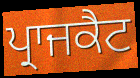
ਪ੍ਰਾਜਕੈਟ